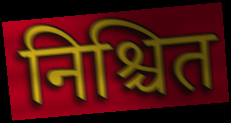
निश्चित